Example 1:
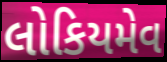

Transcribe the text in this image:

લોકિયમેવ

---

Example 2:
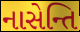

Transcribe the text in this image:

નાસેન્તિ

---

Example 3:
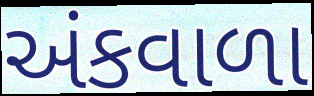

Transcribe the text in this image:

અંકવાળા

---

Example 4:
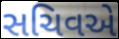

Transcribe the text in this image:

સચિવએ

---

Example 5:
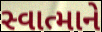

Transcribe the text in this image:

સ્વાત્માને